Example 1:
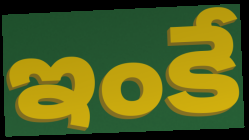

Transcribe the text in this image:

ఇంకే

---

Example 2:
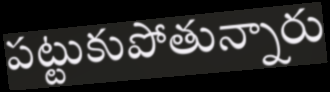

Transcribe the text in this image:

పట్టుకుపోతున్నారు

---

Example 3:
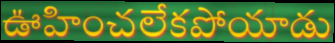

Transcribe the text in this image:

ఊహించలేకపోయాడు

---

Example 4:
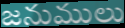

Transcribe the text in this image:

జనుములు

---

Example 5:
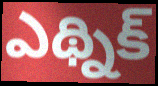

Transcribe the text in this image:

ఎథ్నిక్